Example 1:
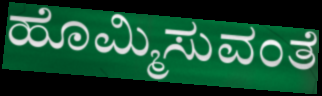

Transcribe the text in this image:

ಹೊಮ್ಮಿಸುವಂತೆ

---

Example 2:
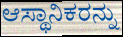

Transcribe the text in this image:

ಆಸ್ಥಾನಿಕರನ್ನು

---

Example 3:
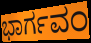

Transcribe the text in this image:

ಭಾರ್ಗವಂ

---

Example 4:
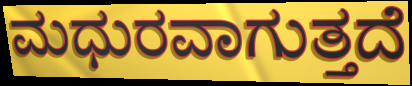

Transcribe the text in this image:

ಮಧುರವಾಗುತ್ತದೆ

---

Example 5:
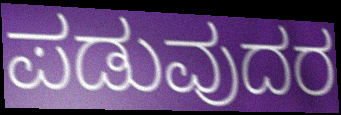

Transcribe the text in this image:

ಪಡುವುದರ